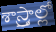
శాస్ర్తాల్లో